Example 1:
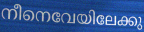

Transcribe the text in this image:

നീനെവേയിലേക്കു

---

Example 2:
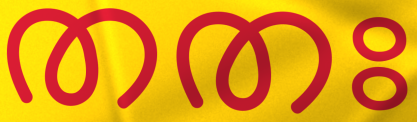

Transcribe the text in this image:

തതഃ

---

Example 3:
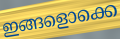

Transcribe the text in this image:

ഇങ്ങളൊക്കെ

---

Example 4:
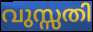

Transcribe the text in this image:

വുസ്സതി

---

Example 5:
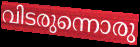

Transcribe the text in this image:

വിടരുന്നൊരു